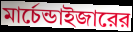
মার্চেন্ডাইজারের